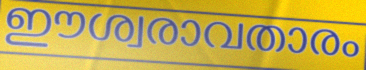
ഈശ്വരാവതാരം